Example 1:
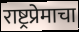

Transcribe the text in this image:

राष्ट्रप्रेमाचा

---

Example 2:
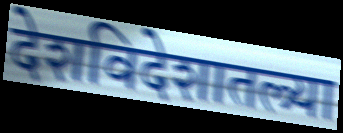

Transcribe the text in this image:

देशविदेशातल्या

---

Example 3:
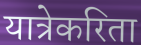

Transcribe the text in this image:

यात्रेकरिता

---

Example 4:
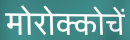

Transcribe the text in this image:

मोरोक्कोचें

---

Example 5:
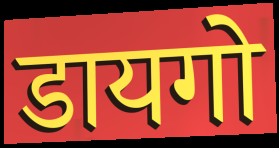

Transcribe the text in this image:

डायगो